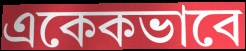
একেকভাবে